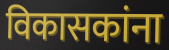
विकासकांना